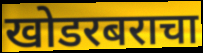
खोडरबराचा